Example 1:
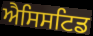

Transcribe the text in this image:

ਐਸਿਸਟਿਡ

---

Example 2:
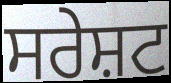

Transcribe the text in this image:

ਸਰੇਸ਼ਟ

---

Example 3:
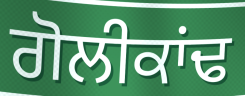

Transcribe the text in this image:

ਗੋਲੀਕਾਂਢ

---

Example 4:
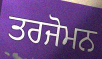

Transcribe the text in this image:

ਤਰਜੋਮਨ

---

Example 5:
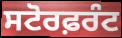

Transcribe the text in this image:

ਸਟੋਰਫ਼ਰੰਟ